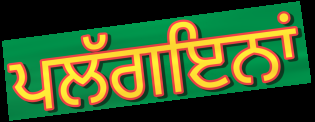
ਪਲੱਗਇਨਾਂ